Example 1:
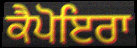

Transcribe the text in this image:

ਕੈਪੋਇਰਾ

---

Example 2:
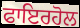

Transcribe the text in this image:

ਫਾਇਰਹੋਲ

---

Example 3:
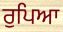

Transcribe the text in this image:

ਰੁਪਿਆ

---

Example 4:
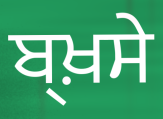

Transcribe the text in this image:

ਬ੍ਖ਼ਸੇ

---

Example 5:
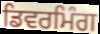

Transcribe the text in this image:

ਡਿਵਰਮਿੰਗ